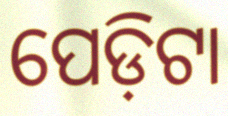
ପେଡ଼ିଟା